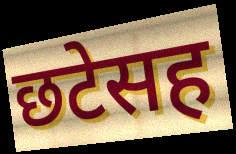
छटेसह